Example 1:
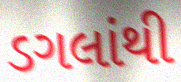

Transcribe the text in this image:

ડગલાંથી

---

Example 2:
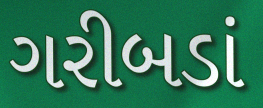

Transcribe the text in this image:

ગરીબડાં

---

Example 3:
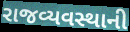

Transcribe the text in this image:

રાજવ્યવસ્થાની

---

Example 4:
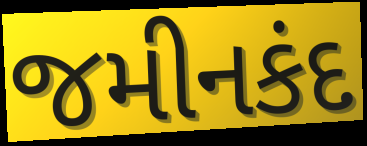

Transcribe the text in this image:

જમીનકંદ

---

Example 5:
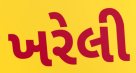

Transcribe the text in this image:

ખરેલી